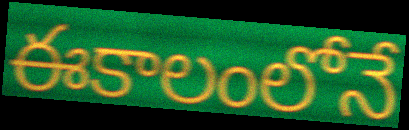
ఈకాలంలోనే